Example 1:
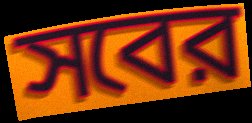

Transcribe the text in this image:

সবের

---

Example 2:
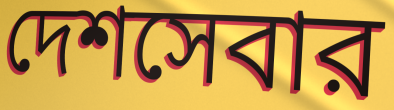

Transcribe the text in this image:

দেশসেবার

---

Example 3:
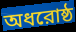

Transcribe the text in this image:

অধরোষ্ঠ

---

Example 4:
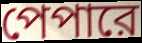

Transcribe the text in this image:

পেপারে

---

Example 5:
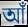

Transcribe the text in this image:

আঁ